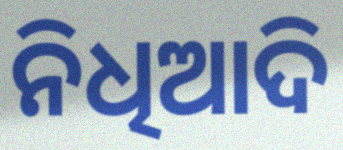
ନିଧିଆଦି